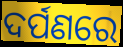
ଦର୍ପଣରେ